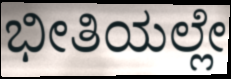
ಭೀತಿಯಲ್ಲೇ